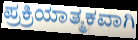
ಪ್ರಕ್ರಿಯಾತ್ಮಕವಾಗಿ